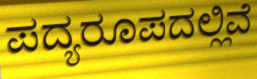
ಪದ್ಯರೂಪದಲ್ಲಿವೆ